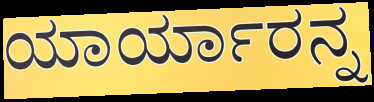
ಯಾರ್ಯಾರನ್ನ